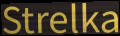
Strelka